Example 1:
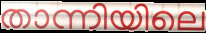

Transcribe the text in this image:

താന്നിയിലെ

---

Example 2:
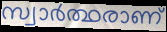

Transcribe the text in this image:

സ്വാർത്ഥരാണ്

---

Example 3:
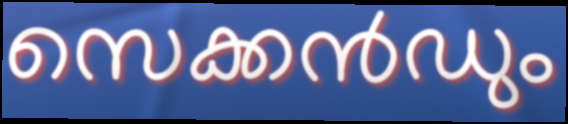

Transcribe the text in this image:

സെക്കൻഡും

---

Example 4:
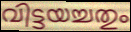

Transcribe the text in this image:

വിട്ടയച്ചതും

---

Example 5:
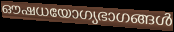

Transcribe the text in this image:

ഔഷധയോഗ്യഭാഗങ്ങൾ